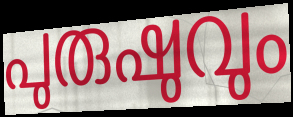
പുരുഷുവും